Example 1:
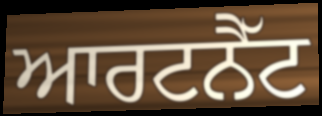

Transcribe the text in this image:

ਆਰਟਨੈੱਟ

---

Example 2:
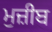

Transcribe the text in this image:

ਮੁਜ਼ੀਬ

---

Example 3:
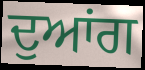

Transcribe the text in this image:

ਦੁਆਂਗ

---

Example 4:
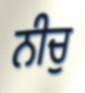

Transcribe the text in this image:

ਨੀਚੁ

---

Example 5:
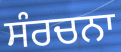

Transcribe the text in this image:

ਸੰਰਚਨਾ